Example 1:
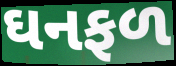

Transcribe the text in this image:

ઘનફળ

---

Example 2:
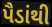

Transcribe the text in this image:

પૈડાંથી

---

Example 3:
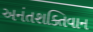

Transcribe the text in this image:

અનંતશક્તિવાન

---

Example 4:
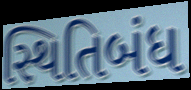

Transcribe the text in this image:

સ્થિતિબંધ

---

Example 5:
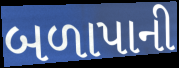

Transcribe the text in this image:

બળાપાની